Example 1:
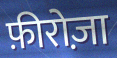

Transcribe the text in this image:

फ़ीरोज़ा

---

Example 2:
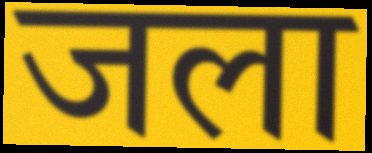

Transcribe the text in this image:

जला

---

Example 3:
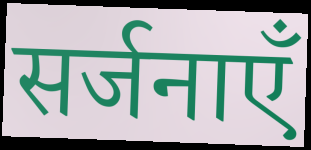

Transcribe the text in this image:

सर्जनाएँ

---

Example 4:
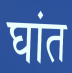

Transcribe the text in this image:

घांत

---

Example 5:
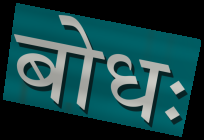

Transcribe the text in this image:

बोधः